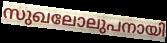
സുഖലോലുപനായി